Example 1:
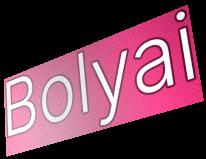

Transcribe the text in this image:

Bolyai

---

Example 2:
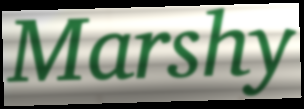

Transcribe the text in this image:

Marshy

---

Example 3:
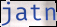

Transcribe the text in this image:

jatn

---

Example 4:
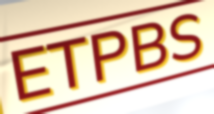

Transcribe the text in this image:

ETPBS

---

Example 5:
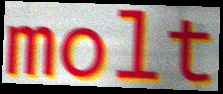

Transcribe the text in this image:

molt